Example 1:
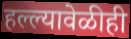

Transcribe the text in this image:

हल्ल्यावेळीही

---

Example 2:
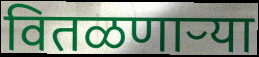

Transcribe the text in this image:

वितळणाऱ्या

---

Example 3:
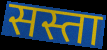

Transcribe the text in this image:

सस्ता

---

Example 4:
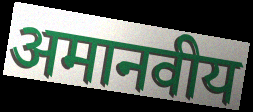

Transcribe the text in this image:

अमानवीय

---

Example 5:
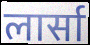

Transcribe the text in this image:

लार्सा